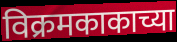
विक्रमकाकाच्या